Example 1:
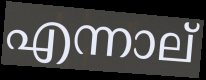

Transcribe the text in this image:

എന്നാല്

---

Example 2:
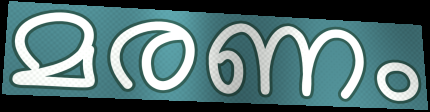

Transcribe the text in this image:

മരണം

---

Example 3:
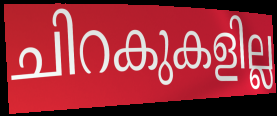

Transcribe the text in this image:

ചിറകുകളില്ല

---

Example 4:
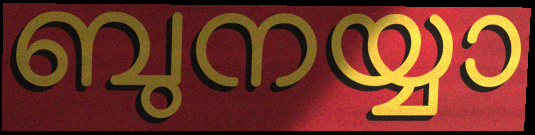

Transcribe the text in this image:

ബുനയ്യാ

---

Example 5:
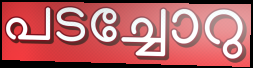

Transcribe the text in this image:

പടച്ചോറു